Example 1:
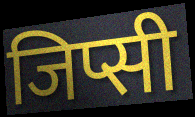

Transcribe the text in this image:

जिप्सी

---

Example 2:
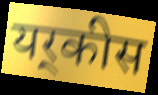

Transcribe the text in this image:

यर्कीस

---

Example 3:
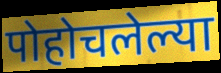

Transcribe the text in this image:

पोहोचलेल्या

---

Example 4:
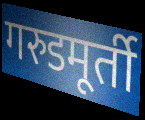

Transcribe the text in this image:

गरुडमूर्ती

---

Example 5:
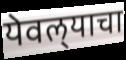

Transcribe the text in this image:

येवल्याचा